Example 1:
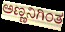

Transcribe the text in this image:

ಅಣ್ಣನಿಗಿಂತ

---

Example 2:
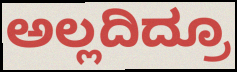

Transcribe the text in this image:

ಅಲ್ಲದಿದ್ರೂ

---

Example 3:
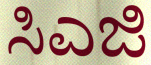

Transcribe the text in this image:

ಸಿಎಜಿ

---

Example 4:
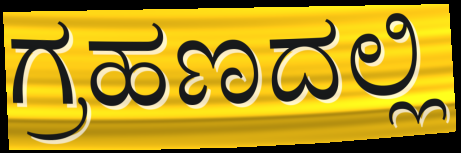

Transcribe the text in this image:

ಗ್ರಹಣದಲ್ಲಿ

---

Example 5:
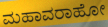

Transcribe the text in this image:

ಮಹಾವರಾಹೋ